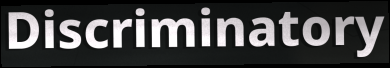
Discriminatory